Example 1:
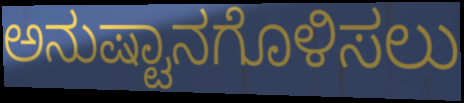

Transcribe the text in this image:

ಅನುಷ್ಟಾನಗೊಳಿಸಲು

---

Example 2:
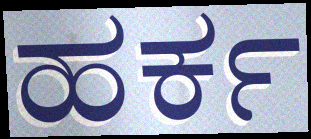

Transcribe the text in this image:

ಹರ್ಕ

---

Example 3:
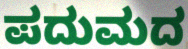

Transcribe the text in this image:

ಪದುಮದ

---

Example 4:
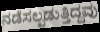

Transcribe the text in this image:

ನಡೆಸಲ್ಪಡುತ್ತಿದ್ದವು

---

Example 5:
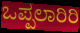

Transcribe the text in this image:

ಒಪ್ಪಲಾರಿರಿ